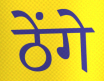
ठेंगे